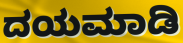
ದಯಮಾಡಿ